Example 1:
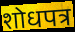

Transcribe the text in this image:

शोधपत्र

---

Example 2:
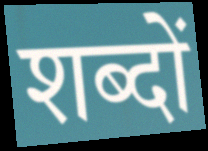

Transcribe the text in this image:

शब्‍दों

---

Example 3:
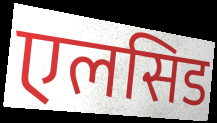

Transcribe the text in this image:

एलसिड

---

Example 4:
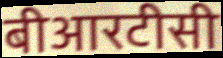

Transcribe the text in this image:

बीआरटीसी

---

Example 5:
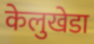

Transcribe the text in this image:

केलुखेडा